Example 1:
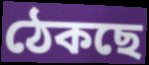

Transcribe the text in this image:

ঠেকছে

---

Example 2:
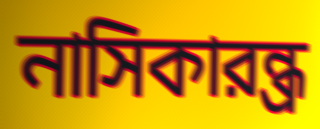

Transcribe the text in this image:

নাসিকারন্ধ্র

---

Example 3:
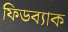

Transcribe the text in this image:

ফিডব্যাক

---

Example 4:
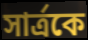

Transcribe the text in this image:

সার্ত্রকে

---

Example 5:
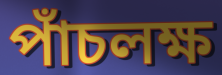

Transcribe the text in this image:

পাঁচলক্ষ